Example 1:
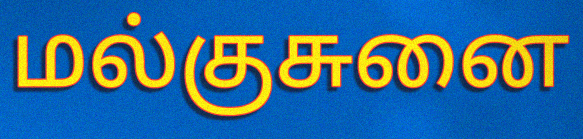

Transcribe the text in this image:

மல்குசுனை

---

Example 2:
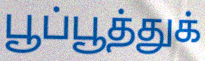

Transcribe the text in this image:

பூப்பூத்துக்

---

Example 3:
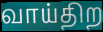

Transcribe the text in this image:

வாய்திற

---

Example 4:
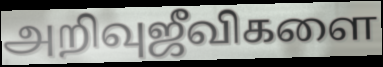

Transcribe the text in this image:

அறிவுஜீவிகளை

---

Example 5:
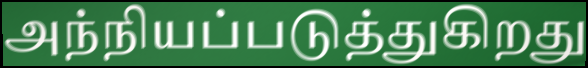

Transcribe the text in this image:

அந்நியப்படுத்துகிறது